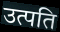
उत्पति